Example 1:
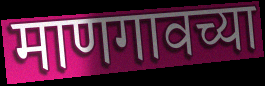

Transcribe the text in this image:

माणगावच्या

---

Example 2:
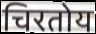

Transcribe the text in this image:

चिरतोय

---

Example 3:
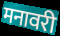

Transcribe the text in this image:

मनावरी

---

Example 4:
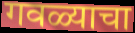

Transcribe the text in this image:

गवळ्याचा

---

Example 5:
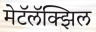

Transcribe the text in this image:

मेटॅलॅक्झिल